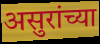
असुरांच्या